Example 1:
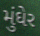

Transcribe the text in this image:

મુંઘેર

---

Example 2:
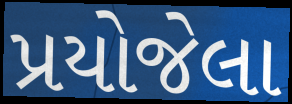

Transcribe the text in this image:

પ્રયોજેલા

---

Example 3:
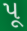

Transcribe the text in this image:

પૂ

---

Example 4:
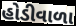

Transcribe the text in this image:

હોડીવાળા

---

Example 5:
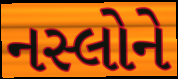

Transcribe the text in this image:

નસ્લોને